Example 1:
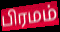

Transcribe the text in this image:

பிரமம்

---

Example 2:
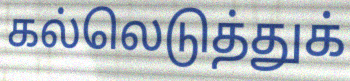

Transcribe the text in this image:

கல்லெடுத்துக்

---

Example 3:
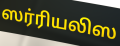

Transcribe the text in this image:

ஸர்ரியலிஸ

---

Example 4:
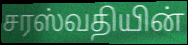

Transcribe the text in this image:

சரஸ்வதியின்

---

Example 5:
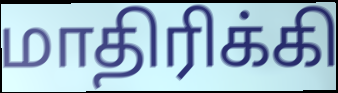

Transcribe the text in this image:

மாதிரிக்கி